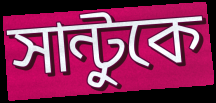
সান্টুকে